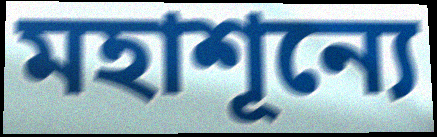
মহাশূন্যে